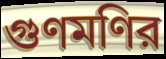
গুণমণির